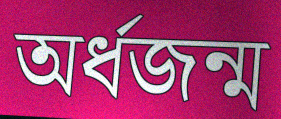
অর্ধজন্ম